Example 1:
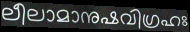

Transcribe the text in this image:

ലീലാമാനുഷവിഗ്രഹഃ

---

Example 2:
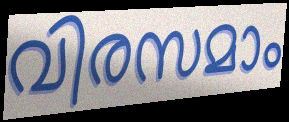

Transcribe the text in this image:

വിരസമാം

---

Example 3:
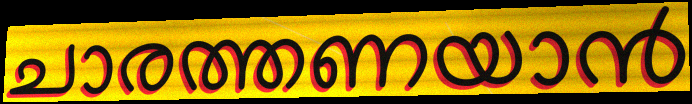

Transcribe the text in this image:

ചാരത്തണയാൻ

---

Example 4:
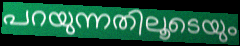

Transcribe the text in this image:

പറയുന്നതിലൂടെയും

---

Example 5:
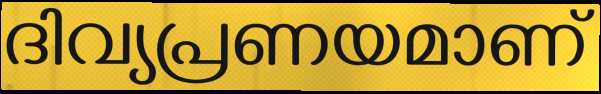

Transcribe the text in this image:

ദിവ്യപ്രണയമാണ്